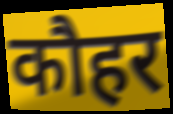
कौहर